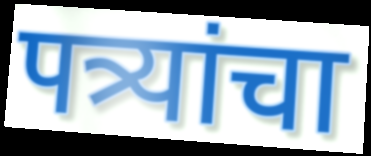
पत्र्यांचा